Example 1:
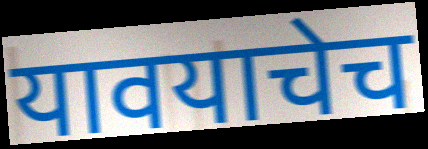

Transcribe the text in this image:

यावयाचेच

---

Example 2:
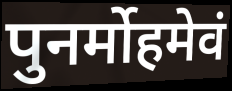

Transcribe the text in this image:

पुनर्मोहमेवं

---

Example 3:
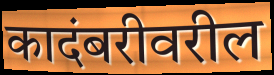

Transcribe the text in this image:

कादंबरीवरील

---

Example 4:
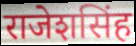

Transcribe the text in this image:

राजेशसिंह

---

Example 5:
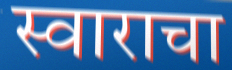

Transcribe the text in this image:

स्वाराचा